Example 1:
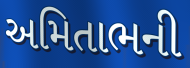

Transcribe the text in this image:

અમિતાભની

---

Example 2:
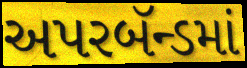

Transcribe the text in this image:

અપરબૅન્ડમાં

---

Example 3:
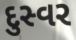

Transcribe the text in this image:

દુસ્વર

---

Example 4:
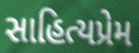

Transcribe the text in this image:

સાહિત્યપ્રેમ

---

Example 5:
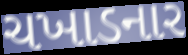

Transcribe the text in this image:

ચખાડનાર